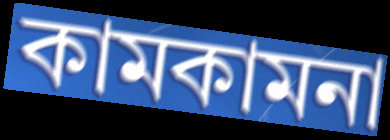
কামকামনা